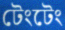
টেংটেং